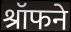
श्रॉफने